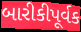
બારીકીપૂર્વક